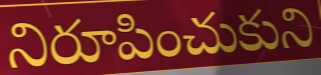
నిరూపించుకుని